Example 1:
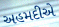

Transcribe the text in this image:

અહમદીએ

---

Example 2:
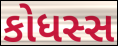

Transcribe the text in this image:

કોધસ્સ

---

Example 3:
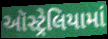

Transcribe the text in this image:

ઑસ્ટ્રેલિયામાં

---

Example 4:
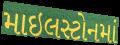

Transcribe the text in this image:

માઇલસ્ટોનમાં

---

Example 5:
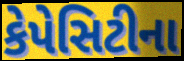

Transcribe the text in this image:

કેપેસિટીના